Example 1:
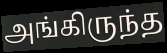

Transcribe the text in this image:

அங்கிருந்த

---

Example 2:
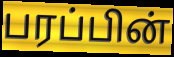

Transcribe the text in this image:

பரப்பின்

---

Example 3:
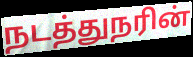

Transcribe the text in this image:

நடத்துநரின்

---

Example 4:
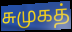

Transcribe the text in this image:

சுமுகத்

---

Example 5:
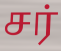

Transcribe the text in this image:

சர்